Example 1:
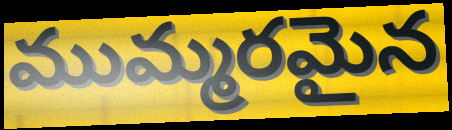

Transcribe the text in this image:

ముమ్మరమైన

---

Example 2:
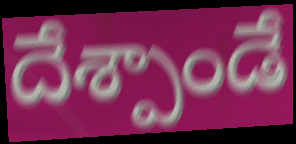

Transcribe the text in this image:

దేశ్పాండే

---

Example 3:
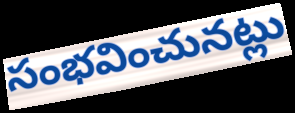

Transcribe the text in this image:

సంభవించునట్లు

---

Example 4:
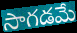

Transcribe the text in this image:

సాగడమే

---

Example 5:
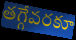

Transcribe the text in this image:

తగ్గేవరకూ